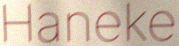
Haneke